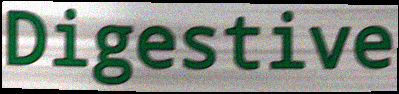
Digestive